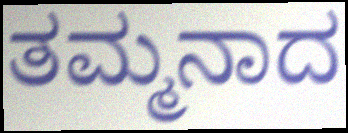
ತಮ್ಮನಾದ